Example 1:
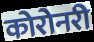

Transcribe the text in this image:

कोरोनरी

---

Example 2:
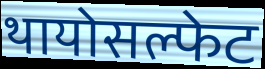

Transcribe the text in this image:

थायोसल्फेट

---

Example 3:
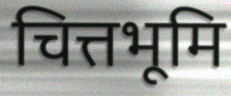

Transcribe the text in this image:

चित्तभूमि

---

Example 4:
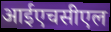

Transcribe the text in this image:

आईएचसीएल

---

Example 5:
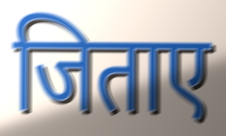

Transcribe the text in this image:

जिताए